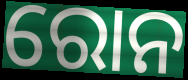
ରୋନ